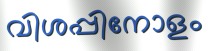
വിശപ്പിനോളം